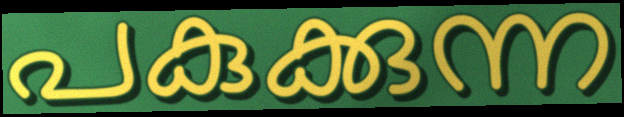
പകുക്കുന്ന